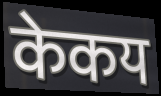
केकय